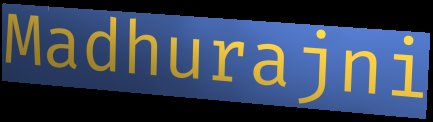
Madhurajni